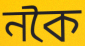
নকৈ